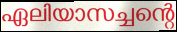
ഏലിയാസച്ചന്റെ